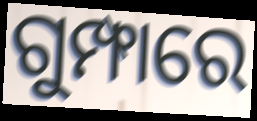
ଗୁମ୍ଫାରେ